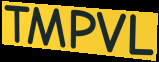
TMPVL